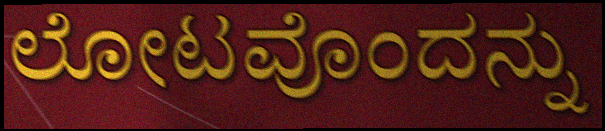
ಲೋಟವೊಂದನ್ನು